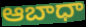
ఆబాధా